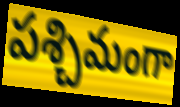
పశ్చిమంగా